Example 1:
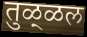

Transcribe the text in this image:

तुळ्‌ळल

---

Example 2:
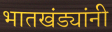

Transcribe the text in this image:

भातखंड्यांनी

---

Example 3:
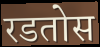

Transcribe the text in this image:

रडतोस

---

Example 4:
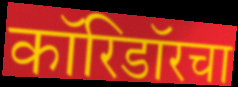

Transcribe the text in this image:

कॉरिडॉरचा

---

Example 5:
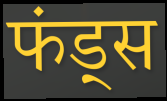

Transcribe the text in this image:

फंड्‌स